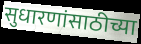
सुधारणांसाठीच्या